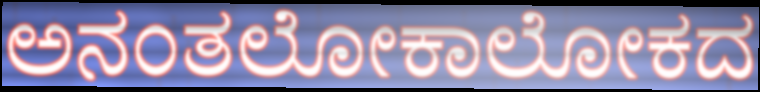
ಅನಂತಲೋಕಾಲೋಕದ